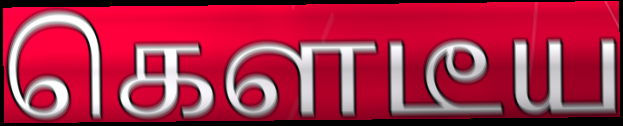
கௌடீய